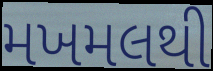
મખમલથી